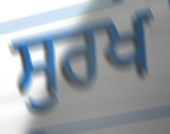
ਸੁਰਖ